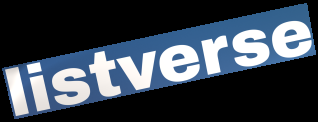
listverse